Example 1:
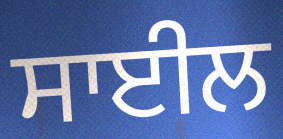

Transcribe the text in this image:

ਸਾਈਲ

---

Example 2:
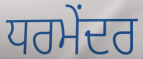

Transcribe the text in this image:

ਧਰਮੇਂਦਰ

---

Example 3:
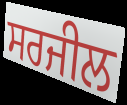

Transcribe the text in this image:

ਸਰਜੀਲ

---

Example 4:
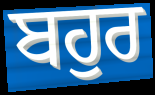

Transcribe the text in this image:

ਬਹੁਰ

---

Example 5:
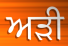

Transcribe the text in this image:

ਅੜੀ